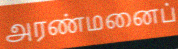
அரண்மனைப்